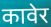
कावेर